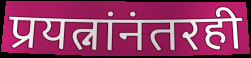
प्रयत्नांनंतरही